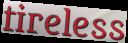
tireless